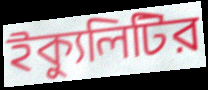
ইক্যুলিটির